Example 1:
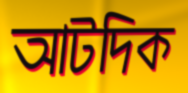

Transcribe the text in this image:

আটদিক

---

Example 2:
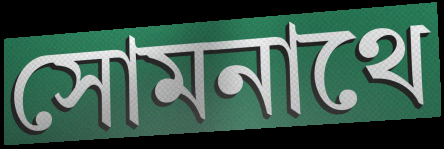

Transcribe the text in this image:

সোমনাথে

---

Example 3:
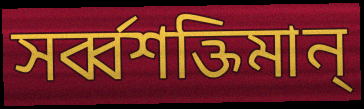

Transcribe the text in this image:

সর্ব্বশক্তিমান্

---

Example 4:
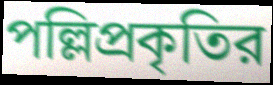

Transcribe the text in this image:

পল্লিপ্রকৃতির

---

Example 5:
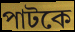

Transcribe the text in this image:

পাটকে